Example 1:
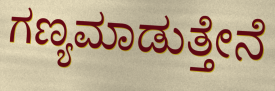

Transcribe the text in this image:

ಗಣ್ಯಮಾಡುತ್ತೇನೆ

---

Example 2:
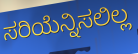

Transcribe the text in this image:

ಸರಿಯೆನ್ನಿಸಲಿಲ್ಲ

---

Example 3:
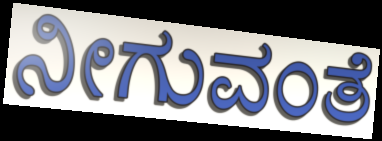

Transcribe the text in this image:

ನೀಗುವಂತೆ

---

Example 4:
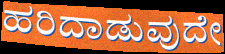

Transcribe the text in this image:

ಹರಿದಾಡುವುದೇ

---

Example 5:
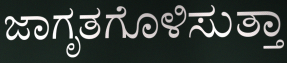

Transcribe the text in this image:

ಜಾಗೃತಗೊಳಿಸುತ್ತಾ